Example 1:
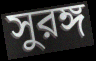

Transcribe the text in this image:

সুরঙ্গ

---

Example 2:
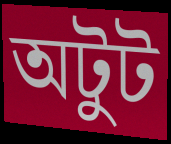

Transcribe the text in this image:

অটুট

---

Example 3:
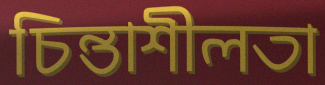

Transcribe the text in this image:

চিন্তাশীলতা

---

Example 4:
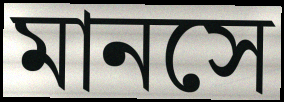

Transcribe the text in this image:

মানসে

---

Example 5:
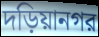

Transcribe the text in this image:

দড়িয়ানগর